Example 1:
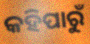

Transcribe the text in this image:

କହିପାରୁଁ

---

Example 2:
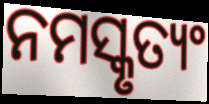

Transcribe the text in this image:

ନମସ୍କୃତ୍ୟଂ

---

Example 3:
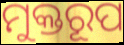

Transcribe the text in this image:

ମୁକ୍ତରୂପ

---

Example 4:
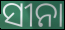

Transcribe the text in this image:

ସୀନା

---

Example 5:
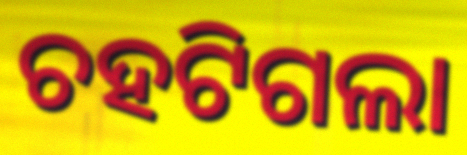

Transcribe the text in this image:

ଚହଟିଗଲା